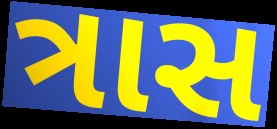
ત્રાસ